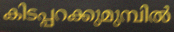
കിടപ്പറക്കുമുമ്പിൽ